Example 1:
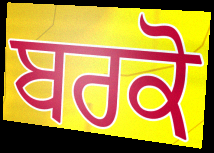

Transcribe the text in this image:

ਬਰਕੋ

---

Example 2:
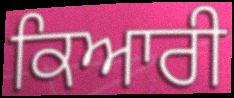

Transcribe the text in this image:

ਕਿਆਰੀ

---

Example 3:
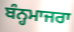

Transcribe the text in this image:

ਬੰਨ੍ਹਮਾਜਰਾ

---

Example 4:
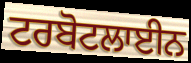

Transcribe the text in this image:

ਟਰਬੋਟਲਾਈਨ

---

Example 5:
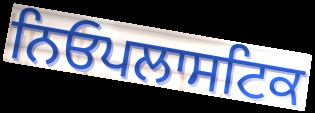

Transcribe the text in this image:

ਨਿਓਪਲਾਸਟਿਕ